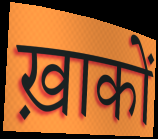
ख़ाकों